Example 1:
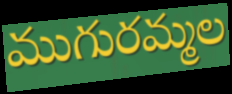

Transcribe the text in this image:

ముగురమ్మల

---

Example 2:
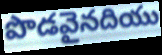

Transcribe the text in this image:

పొడవైనదియు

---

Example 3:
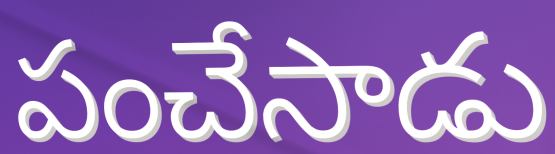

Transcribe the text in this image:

పంచేసాడు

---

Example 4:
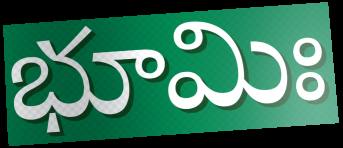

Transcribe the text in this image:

భూమిః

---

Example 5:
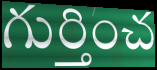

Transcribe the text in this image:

గుర్తించ